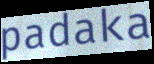
padaka